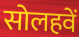
सोलहवें